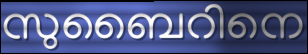
സുബൈറിനെ